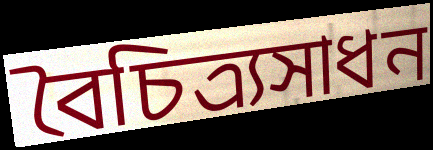
বৈচিত্র্যসাধন